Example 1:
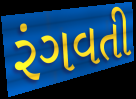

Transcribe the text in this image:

રંગવતી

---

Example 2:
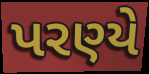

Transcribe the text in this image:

પરણ્યે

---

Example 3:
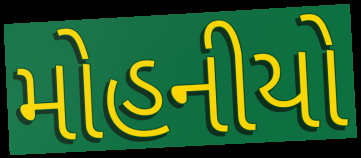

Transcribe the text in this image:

મોહનીયો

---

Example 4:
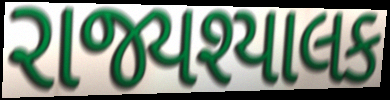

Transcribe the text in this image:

રાજ્યશ્યાલક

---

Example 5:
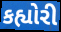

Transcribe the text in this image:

કહ્યોરી